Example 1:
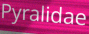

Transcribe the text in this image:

Pyralidae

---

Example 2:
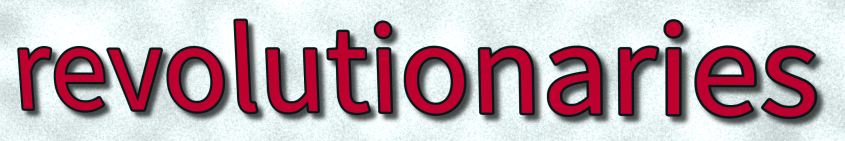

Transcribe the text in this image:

revolutionaries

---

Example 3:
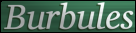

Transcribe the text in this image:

Burbules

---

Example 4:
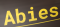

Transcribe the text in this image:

Abies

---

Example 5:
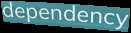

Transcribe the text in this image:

dependency